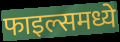
फाइल्समध्ये